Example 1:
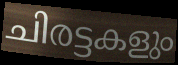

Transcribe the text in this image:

ചിരട്ടകളും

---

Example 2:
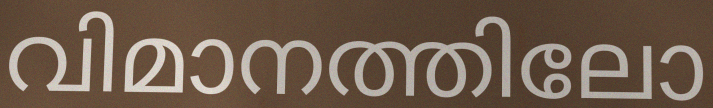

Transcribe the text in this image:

വിമാനത്തിലോ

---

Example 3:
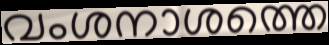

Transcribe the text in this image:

വംശനാശത്തെ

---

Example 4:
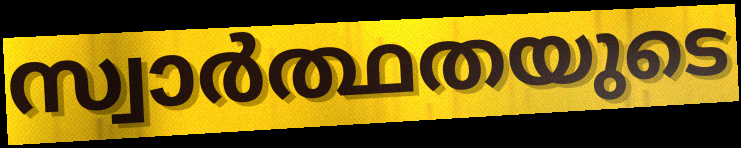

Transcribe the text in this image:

സ്വാർത്ഥതയുടെ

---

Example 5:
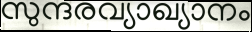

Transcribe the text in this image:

സുന്ദരവ്യാഖ്യാനം